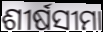
ଶୀର୍ଷସୀମା